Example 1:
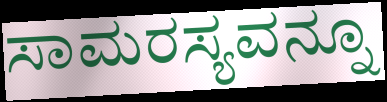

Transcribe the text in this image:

ಸಾಮರಸ್ಯವನ್ನೂ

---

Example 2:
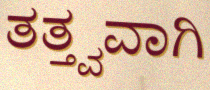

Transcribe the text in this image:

ತತ್ತ್ವವಾಗಿ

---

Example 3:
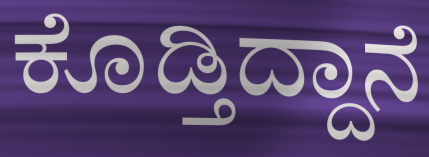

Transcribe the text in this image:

ಕೊಡ್ತಿದ್ದಾನೆ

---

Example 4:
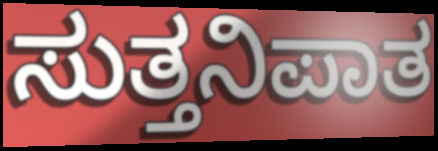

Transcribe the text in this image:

ಸುತ್ತನಿಪಾತ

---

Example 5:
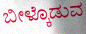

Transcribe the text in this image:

ಬೀಳ್ಕೊಡುವ